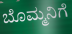
ಬೊಮ್ಮನಿಗೆ